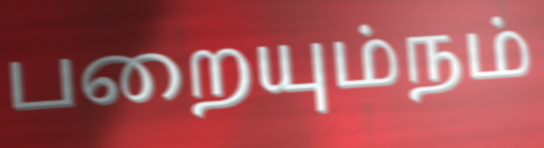
பறையும்நம்